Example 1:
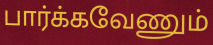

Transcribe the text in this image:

பார்க்கவேணும்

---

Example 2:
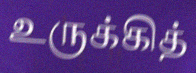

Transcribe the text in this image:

உருக்கித்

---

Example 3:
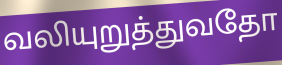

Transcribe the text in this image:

வலியுறுத்துவதோ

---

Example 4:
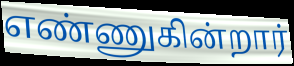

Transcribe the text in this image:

எண்ணுகின்றார்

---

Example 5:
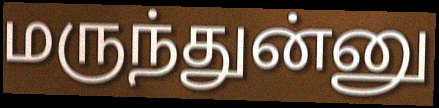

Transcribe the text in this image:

மருந்துன்னு